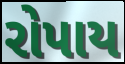
રોપાય